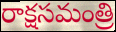
రాక్షసమంత్రి